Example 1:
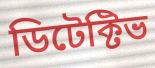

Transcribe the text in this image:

ডিটেক্টিভ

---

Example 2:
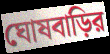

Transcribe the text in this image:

ঘোষবাড়ির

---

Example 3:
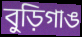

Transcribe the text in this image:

বুড়িগাঙ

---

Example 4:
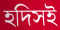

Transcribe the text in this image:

হদিসই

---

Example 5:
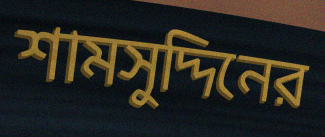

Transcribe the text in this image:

শামসুদ্দিনের